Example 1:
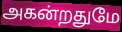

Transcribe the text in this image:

அகன்றதுமே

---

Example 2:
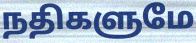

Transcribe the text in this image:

நதிகளுமே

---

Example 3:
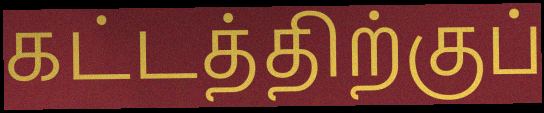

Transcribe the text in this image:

கட்டத்திற்குப்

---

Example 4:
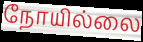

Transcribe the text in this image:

நோயில்லை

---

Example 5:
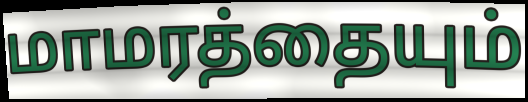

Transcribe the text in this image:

மாமரத்தையும்